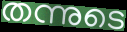
തന്നുടെ